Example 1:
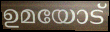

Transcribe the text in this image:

ഉമയോട്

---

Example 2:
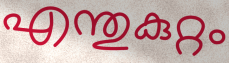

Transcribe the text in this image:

എന്തുകുറ്റം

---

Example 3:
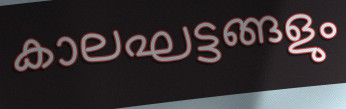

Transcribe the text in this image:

കാലഘട്ടങ്ങളും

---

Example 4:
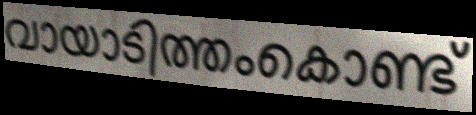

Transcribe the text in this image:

വായാടിത്തംകൊണ്ട്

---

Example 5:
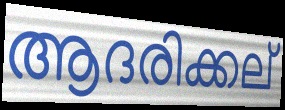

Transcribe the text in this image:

ആദരിക്കല്